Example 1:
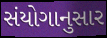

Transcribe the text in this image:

સંયોગાનુસાર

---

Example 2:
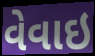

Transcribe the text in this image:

વેવાઇ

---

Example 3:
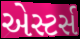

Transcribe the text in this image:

એસ્ટર્સ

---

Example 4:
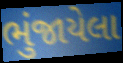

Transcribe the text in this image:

ભુંજાયેલા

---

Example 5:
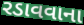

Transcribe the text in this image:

રડાવવાના